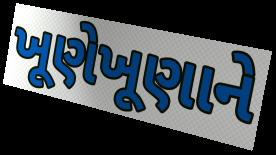
ખૂણેખૂણાને